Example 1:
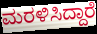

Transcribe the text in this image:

ಮರಳಿಸಿದ್ದಾರೆ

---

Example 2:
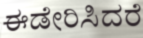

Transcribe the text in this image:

ಈಡೇರಿಸಿದರೆ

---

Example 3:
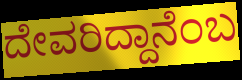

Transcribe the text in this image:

ದೇವರಿದ್ದಾನೆಂಬ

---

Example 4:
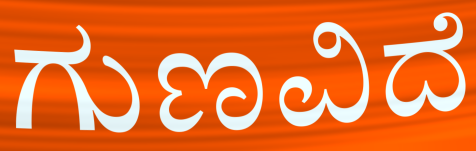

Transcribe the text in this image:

ಗುಣವಿದೆ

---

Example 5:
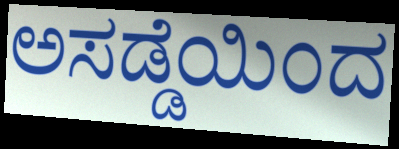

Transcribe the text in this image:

ಅಸಡ್ಡೆಯಿಂದ